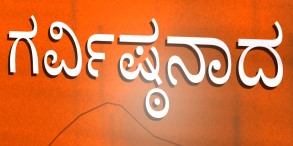
ಗರ್ವಿಷ್ಠನಾದ